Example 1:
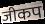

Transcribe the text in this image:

जीकप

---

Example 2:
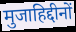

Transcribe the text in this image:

मुजाहिद्दीनों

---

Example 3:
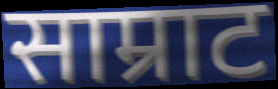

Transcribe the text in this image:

साम्राट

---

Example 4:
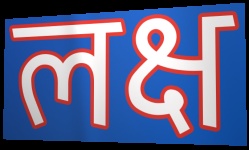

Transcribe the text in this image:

लक्ष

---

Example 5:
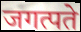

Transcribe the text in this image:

जगत्पते